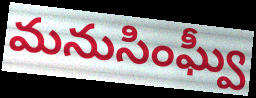
మనుసింఘ్వీ